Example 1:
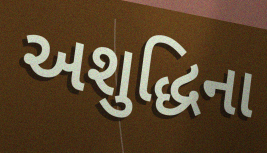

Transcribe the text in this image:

અશુદ્ધિના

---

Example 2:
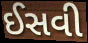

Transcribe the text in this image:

ઈસવી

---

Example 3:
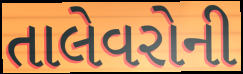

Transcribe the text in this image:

તાલેવરોની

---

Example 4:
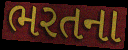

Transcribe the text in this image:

ભરતના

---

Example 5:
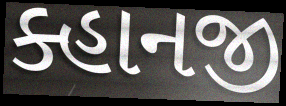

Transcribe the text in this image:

ક્હાનજી